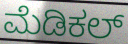
ಮೆಡಿಕಲ್